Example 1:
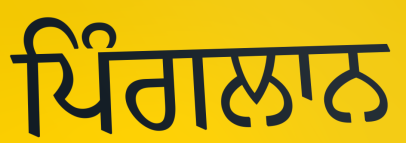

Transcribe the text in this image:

ਪਿੰਗਲਾਨ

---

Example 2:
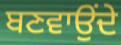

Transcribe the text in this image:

ਬਣਵਾਉਂਦੇ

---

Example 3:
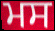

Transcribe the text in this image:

ਮਸ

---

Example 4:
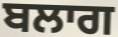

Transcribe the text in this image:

ਬਲਾਗ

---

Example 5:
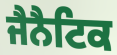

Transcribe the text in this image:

ਜੈਨੈਟਿਕ